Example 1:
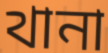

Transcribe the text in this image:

থানা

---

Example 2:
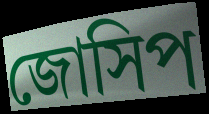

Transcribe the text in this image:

জোসিপ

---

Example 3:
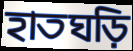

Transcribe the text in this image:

হাতঘড়ি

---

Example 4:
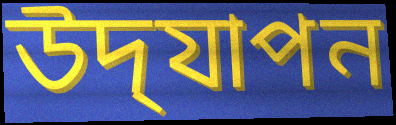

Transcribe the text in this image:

উদ্‌যাপন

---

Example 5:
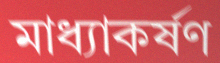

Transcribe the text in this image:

মাধ্যাকৰ্ষণ